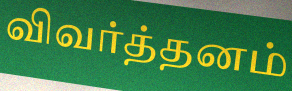
விவர்த்தனம்